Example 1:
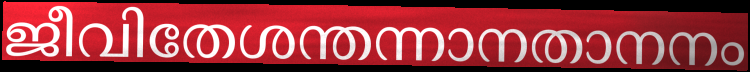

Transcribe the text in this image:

ജീവിതേശന്തന്നാനതാനനം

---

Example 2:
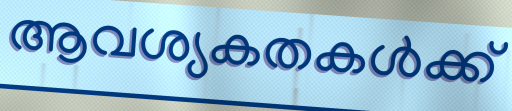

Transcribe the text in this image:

ആവശ്യകതകൾക്ക്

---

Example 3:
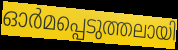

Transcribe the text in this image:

ഓർമപ്പെടുത്തലായി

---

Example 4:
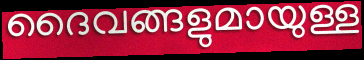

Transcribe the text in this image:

ദൈവങ്ങളുമായുള്ള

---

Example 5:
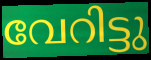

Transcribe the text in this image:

വേറിട്ടു